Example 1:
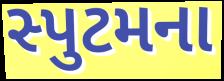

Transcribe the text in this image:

સ્પુટમના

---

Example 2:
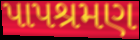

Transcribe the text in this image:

પાપશ્રમણ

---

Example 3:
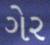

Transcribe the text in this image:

ગેર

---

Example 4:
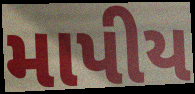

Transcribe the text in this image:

માપીય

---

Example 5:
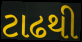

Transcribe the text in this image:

ટાઢથી